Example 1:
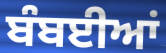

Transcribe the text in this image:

ਬੰਬਈਆਂ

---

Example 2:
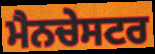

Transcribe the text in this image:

ਮੈਨਚੇਸਟਰ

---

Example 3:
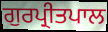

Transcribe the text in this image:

ਗੁਰਪ੍ਰੀਤਪਾਲ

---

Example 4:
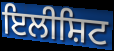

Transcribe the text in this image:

ਇਲੀਸ਼ਿਟ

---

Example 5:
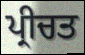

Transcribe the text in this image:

ਪ੍ਰੀਚਤ